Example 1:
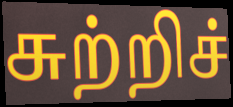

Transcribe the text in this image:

சுற்றிச்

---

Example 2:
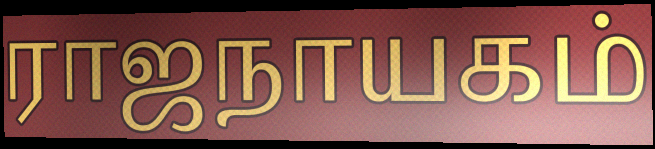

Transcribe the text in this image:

ராஜநாயகம்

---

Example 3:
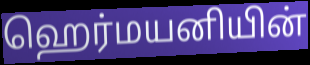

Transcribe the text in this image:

ஹெர்மயனியின்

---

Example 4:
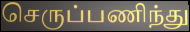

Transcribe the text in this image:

செருப்பணிந்து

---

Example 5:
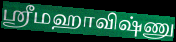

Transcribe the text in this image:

ஸ்ரீமஹாவிஷ்ணு